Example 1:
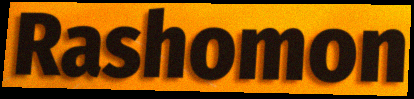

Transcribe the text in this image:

Rashomon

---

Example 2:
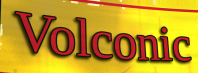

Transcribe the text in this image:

Volconic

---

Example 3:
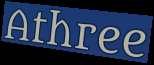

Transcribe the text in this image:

Athree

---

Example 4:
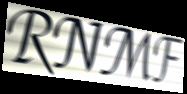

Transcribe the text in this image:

RNMF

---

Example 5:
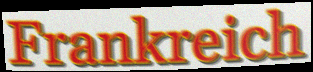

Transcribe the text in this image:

Frankreich